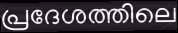
പ്രദേശത്തിലെ